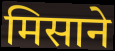
मिसाने